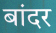
बांदर